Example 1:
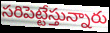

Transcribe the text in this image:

సరిపెట్టేస్తున్నారు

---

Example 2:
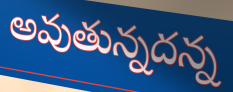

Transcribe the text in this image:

అవుతున్నదన్న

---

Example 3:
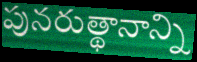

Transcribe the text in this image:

పునరుత్థానాన్ని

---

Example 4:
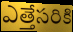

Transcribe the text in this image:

ఎత్తేసరికి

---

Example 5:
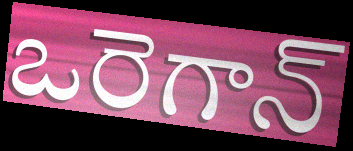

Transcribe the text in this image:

ఒరెగాన్